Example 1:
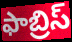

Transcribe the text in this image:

ఫాబ్రిస్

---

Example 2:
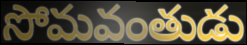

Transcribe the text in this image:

సోమవంతుడు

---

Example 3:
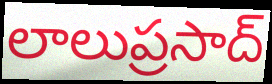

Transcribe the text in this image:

లాలుప్రసాద్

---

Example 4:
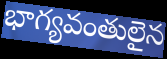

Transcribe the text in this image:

భాగ్యవంతులైన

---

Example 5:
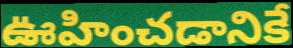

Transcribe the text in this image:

ఊహించడానికే